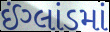
ઈંગ્લાંડમાં